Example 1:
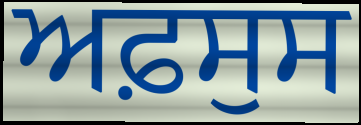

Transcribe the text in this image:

ਅਫ਼ਸੁਸ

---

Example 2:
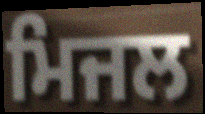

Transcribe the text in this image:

ਮਿਜਲ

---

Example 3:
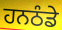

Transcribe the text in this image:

ਹਨਠੰਡੇ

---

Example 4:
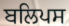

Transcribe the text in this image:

ਬਲਿਪਸ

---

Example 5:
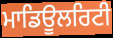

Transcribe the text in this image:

ਮਾਡਿਊਲਰਿਟੀ